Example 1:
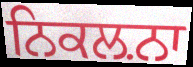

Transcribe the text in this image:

ਨਿਕਲ਼ਨਾ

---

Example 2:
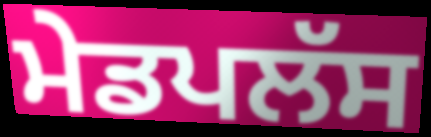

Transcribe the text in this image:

ਮੇਡਪਲੱਸ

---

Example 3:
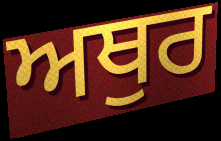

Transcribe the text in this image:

ਅਥੁਰ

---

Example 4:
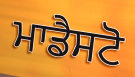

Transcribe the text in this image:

ਮਾਡੈਸਟੋ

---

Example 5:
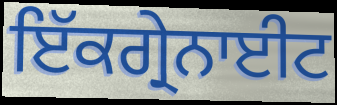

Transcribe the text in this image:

ਇੱਕਗ੍ਰੇਨਾਈਟ